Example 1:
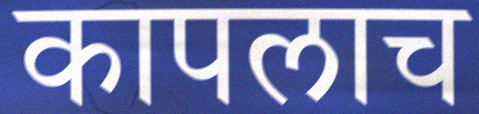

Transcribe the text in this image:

कापलाच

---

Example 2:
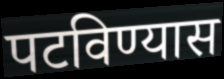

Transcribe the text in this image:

पटविण्यास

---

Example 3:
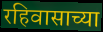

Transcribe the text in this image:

रहिवासाच्या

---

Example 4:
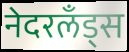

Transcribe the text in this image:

नेदरलँड्स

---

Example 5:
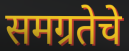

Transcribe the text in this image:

समग्रतेचे